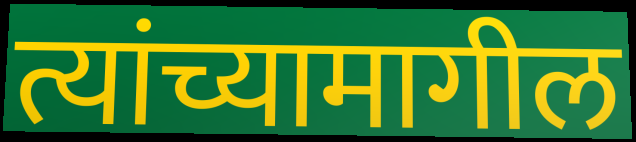
त्यांच्यामागील